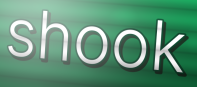
shook